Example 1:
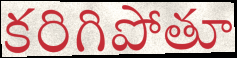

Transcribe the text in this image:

కరిగిపోతూ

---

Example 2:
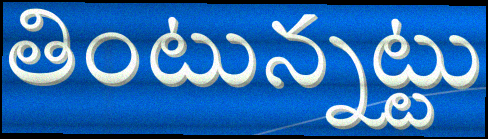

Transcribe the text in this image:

తింటున్నట్టు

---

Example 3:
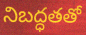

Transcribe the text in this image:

నిబద్ధతతో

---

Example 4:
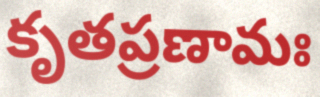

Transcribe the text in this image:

కృతప్రణామః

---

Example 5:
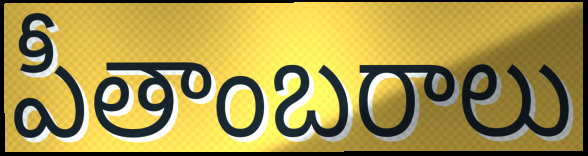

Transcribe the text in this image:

పీతాంబరాలు